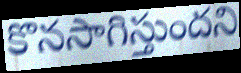
కొనసాగిస్తుందని